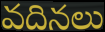
వదినలు